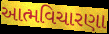
આત્મવિચારણા